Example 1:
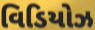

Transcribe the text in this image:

વિડિયોઝ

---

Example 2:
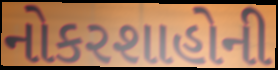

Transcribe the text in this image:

નોકરશાહોની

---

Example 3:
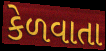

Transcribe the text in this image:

કેળવાતા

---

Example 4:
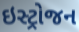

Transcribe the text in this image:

ઇસ્ટ્રોજન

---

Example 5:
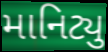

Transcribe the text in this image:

માનિટ્યુ